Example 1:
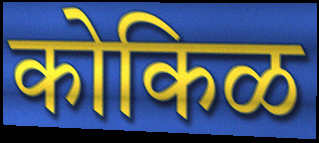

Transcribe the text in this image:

कोकिळ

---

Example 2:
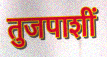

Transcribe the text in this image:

तुजपाशीं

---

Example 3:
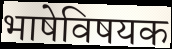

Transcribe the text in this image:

भाषेविषयक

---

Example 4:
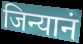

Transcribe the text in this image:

जिन्यानं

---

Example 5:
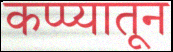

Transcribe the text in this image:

कप्प्यातून